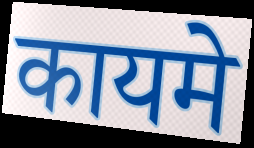
कायमे